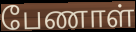
பேணாள்